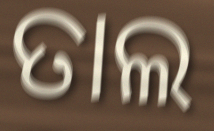
ତାଲ